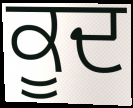
ਕੂਦ